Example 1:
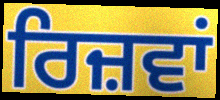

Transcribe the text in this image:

ਰਿਜ਼ਵਾਂ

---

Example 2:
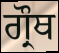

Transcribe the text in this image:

ਗ੍ਰੌਥ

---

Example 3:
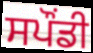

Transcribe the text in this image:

ਸਪੌਂਡੀ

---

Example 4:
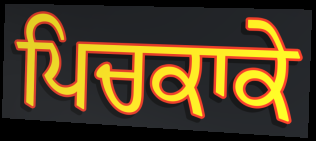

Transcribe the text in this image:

ਪਿਚਕਾਕੇ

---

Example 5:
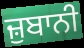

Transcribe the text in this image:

ਜ਼ੁਬਾਨੀ